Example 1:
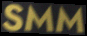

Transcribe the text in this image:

SMM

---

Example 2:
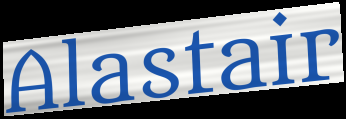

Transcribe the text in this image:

Alastair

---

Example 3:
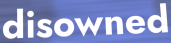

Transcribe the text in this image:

disowned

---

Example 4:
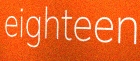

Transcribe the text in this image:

eighteen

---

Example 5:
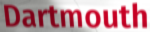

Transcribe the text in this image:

Dartmouth